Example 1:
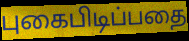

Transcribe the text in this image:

புகைபிடிப்பதை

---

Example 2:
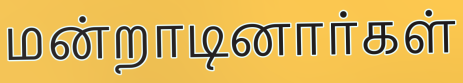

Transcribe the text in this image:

மன்றாடினார்கள்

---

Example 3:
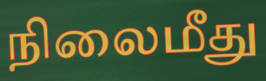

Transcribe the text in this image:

நிலைமீது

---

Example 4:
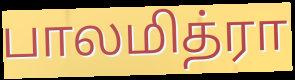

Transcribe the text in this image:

பாலமித்ரா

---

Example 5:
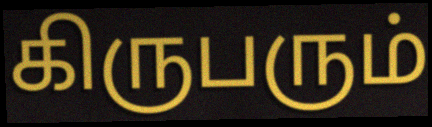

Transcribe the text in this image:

கிருபரும்